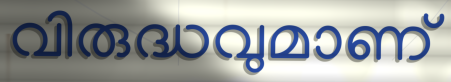
വിരുദ്ധവുമാണ്